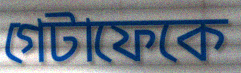
গেটাফেকে